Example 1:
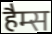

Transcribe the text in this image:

हैम्स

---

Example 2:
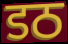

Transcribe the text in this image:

डठ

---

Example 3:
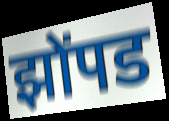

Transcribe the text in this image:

झोंपड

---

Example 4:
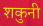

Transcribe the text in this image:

शकुनी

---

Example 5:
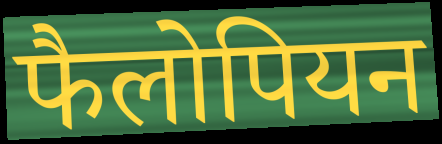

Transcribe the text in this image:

फैलोपियन